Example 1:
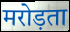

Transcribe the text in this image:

मरोड़ता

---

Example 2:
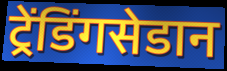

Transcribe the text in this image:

ट्रेंडिंगसेडान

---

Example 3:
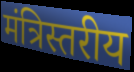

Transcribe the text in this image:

मंत्रिस्तरीय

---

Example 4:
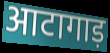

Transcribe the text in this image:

आटागाड़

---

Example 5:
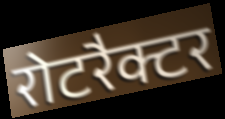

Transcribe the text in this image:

रोटरैक्टर